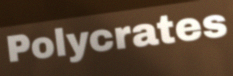
Polycrates